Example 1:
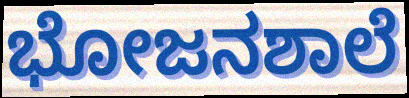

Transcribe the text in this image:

ಭೋಜನಶಾಲೆ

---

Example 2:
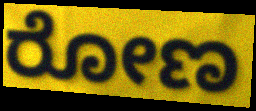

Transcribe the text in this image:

ರೋಣ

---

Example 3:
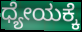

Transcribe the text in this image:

ಧ್ಯೇಯಕ್ಕೆ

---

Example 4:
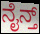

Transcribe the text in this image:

ನೈನ್ತ್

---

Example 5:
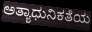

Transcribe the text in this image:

ಅತ್ಯಾಧುನಿಕತೆಯ